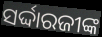
ସର୍ଦ୍ଦାରଜୀଙ୍କ